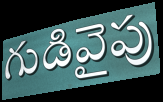
గుడివైపు